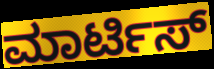
ಮಾರ್ಟಿಸ್